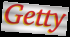
Getty